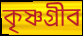
কৃষ্ণগ্রীব